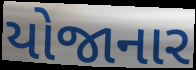
યોજાનાર